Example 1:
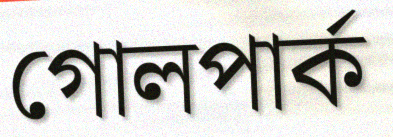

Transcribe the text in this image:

গোলপার্ক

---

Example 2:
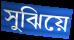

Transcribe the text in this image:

সুঝিয়ে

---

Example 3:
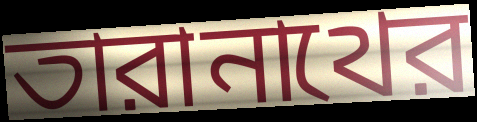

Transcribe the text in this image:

তারানাথের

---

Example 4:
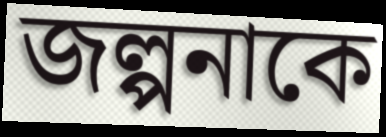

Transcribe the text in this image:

জল্পনাকে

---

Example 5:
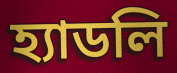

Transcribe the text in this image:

হ্যাডলি